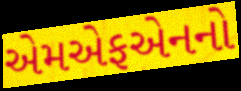
એમએફએનનો